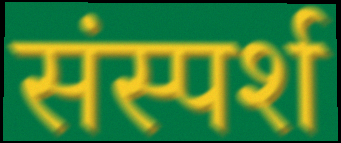
संस्पर्श